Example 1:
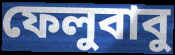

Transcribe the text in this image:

ফেলুবাবু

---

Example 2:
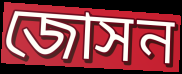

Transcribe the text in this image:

জোসন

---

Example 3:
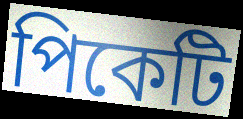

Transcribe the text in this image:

পিকেটি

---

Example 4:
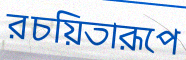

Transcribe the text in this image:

রচয়িতারূপে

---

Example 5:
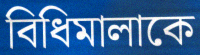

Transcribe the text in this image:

বিধিমালাকে